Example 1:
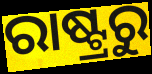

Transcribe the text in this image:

ରାଷ୍ଟ୍ରରୁ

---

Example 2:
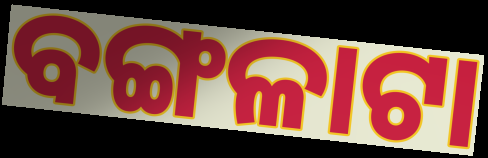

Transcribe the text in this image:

ବଙ୍ଗଳାଟା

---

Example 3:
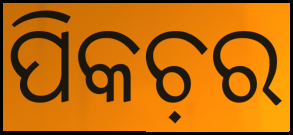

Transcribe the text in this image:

ପିକଚ଼ର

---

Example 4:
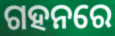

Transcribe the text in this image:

ଗହନରେ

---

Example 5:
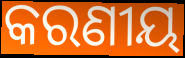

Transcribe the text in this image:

କରଣୀୟ